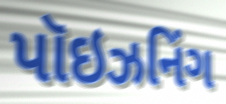
પૉઇઝનિંગ